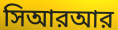
সিআরআর